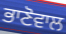
ਭਾਣੋਵਾਲ